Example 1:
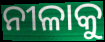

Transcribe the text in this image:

ନୀଳାକୁ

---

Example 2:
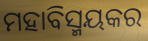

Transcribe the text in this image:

ମହାବିସ୍ମୟକର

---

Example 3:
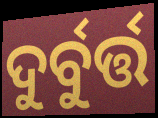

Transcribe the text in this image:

ଦୁର୍ବୁର୍ତ୍ତ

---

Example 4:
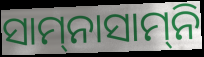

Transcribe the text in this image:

ସାମ୍‍ନାସାମ୍‍ନି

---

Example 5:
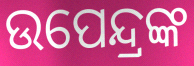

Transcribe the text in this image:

ଉପେନ୍ଦ୍ରଙ୍କ